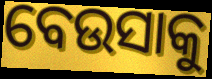
ବେଉସାକୁ